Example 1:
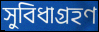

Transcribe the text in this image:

সুবিধাগ্রহণ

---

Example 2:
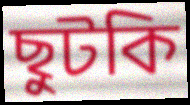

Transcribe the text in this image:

ছুটকি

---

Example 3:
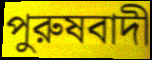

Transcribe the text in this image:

পুরুষবাদী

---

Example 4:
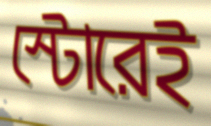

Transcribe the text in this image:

স্টোরেই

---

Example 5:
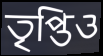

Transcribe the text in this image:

তৃপ্তিও